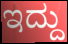
ಇದ್ದು